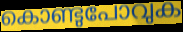
കൊണ്ടുപോവുക